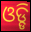
ଓଡ୍ଡି